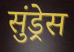
सुंड्रेस